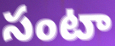
సంటా